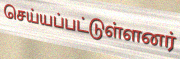
செய்யப்பட்டுள்ளனர்